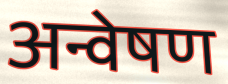
अन्वेषण